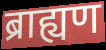
ब्राह्यण